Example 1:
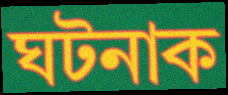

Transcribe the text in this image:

ঘটনাক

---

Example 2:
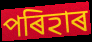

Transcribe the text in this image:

পৰিহাৰ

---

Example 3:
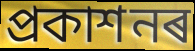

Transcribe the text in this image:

প্ৰকাশনৰ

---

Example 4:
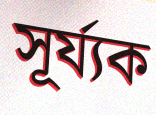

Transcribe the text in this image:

সূৰ্য্যক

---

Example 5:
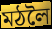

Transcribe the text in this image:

মঠলৈ